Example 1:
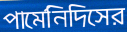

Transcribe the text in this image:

পার্মেনিদিসের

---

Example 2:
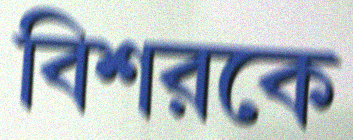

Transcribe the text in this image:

বিশরকে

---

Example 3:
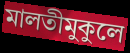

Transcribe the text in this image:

মালতীমুকুলে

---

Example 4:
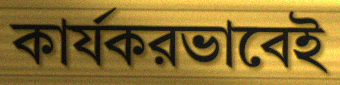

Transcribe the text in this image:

কার্যকরভাবেই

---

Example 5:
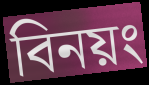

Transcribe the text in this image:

বিনয়ং